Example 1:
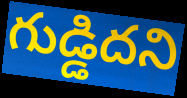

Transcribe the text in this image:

గుడ్డిదని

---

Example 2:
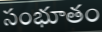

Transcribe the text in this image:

సంభూతం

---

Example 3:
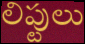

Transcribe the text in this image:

లిప్టులు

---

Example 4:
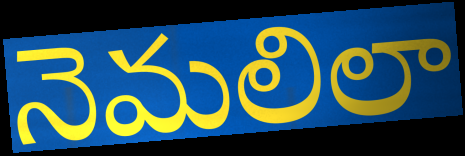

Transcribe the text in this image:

నెమలిలా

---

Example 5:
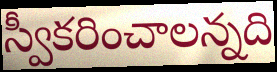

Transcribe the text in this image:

స్వీకరించాలన్నది